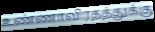
உண்ணாவிரதத்துக்கு